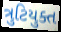
ત્રુટિયુક્ત